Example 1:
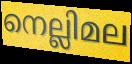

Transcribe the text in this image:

നെല്ലിമല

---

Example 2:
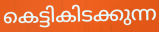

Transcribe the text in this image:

കെട്ടികിടക്കുന്ന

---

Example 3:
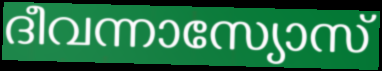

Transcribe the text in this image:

ദീവന്നാസ്യോസ്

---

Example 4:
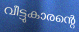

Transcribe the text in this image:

വീട്ടുകാരന്റെ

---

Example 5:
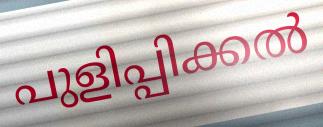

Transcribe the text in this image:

പുളിപ്പിക്കൽ